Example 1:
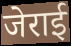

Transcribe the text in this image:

जेराई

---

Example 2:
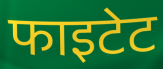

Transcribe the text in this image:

फाइटेट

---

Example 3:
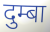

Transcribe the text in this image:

दुम्बा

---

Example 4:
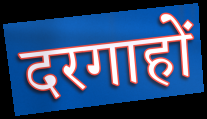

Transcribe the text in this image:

दरगाहों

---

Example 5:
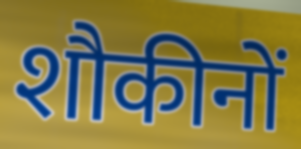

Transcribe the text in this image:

शौकीनों